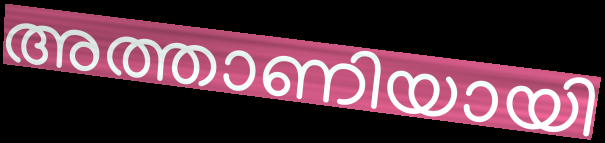
അത്താണിയായി